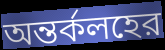
অন্তর্কলহের